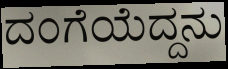
ದಂಗೆಯೆದ್ದನು